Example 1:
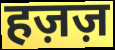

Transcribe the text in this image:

हज़ज़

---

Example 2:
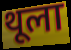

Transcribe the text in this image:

थूला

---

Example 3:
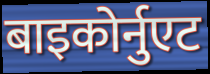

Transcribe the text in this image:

बाइकोर्नुएट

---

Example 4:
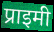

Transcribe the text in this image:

प्राइमी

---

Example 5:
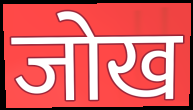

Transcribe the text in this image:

जोख